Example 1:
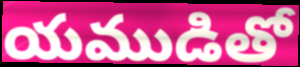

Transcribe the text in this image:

యముడితో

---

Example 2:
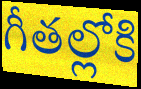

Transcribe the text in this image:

గీతల్లోకి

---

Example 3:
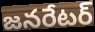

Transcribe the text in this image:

జనరేటర్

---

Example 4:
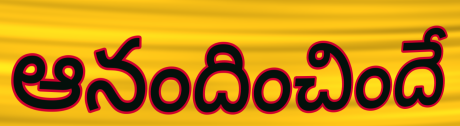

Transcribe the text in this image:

ఆనందించిందే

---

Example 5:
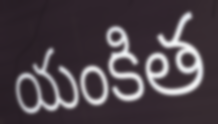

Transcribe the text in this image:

యంకిత